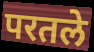
परतले